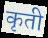
कृती